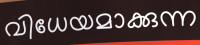
വിധേയമാക്കുന്ന